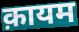
क़ायम